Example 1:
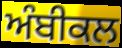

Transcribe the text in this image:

ਅੰਬੀਕਲ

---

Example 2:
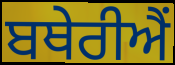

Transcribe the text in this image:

ਬਥੇਰੀਐਂ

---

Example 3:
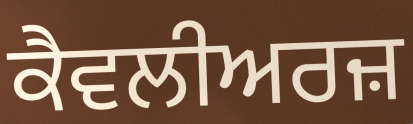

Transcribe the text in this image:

ਕੈਵਲੀਅਰਜ਼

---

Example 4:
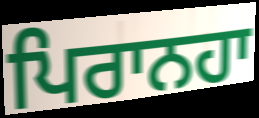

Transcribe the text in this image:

ਪਿਰਾਨਹਾ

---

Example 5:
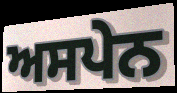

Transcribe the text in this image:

ਅਸਪੇਨ